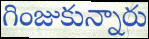
గింజుకున్నారు